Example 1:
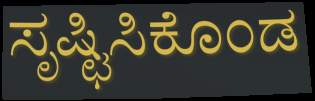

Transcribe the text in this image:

ಸೃಷ್ಟಿಸಿಕೊಂಡ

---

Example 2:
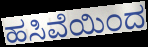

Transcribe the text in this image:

ಹಸಿವೆಯಿಂದ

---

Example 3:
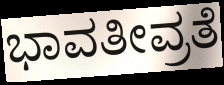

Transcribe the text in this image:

ಭಾವತೀವ್ರತೆ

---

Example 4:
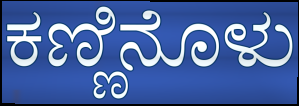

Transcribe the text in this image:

ಕಣ್ಣಿನೊಳು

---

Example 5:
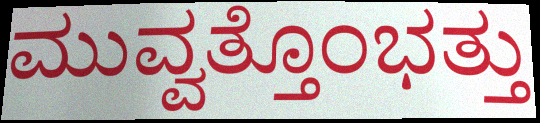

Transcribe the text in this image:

ಮುವ್ವತ್ತೊಂಭತ್ತು